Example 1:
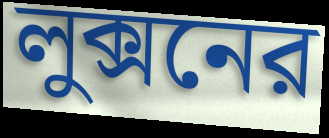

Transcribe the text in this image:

লুক্সনের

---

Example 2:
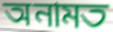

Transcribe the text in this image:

অনামত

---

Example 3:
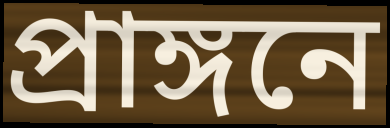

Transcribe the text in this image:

প্রাঙ্গনে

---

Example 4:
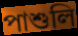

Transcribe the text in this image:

পাশুলি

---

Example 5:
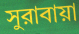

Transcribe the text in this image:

সুরাবায়া